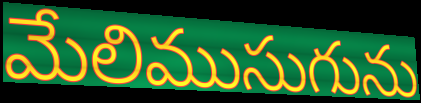
మేలిముసుగును